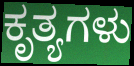
ಕೃತ್ಯಗಳು